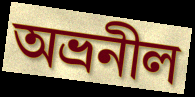
অভ্রনীল